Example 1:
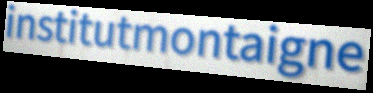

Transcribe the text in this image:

institutmontaigne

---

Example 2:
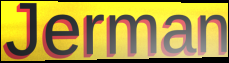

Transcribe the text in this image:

Jerman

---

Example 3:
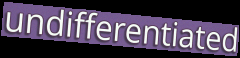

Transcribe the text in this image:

undifferentiated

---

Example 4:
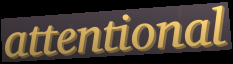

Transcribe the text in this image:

attentional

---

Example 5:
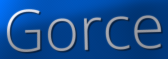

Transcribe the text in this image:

Gorce